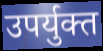
उपर्युक्त